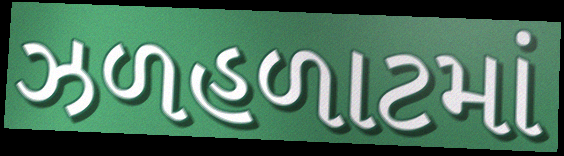
ઝળહળાટમાં